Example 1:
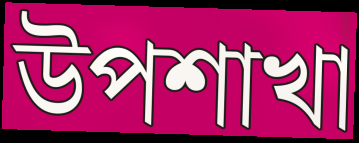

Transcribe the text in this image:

উপশাখা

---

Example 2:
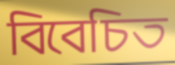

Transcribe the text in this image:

বিবেচিত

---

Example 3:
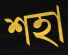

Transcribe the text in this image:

শহা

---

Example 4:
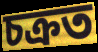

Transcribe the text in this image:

চক্ৰত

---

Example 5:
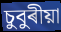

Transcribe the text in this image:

চুবুৰীয়া